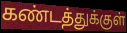
கண்டத்துக்குள்